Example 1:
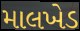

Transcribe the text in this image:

માલખેડ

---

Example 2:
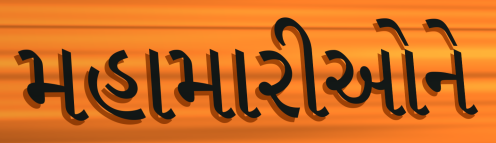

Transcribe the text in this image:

મહામારીઓને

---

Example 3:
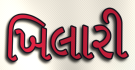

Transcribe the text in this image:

ખિલારી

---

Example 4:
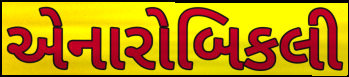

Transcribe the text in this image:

એનારોબિકલી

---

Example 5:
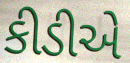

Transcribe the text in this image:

કીડીએ